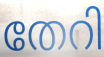
തേറി